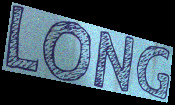
LONG